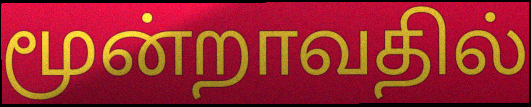
மூன்றாவதில்